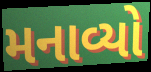
મનાવ્યો